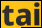
tai